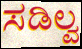
ಸಡಿಲ್ವ